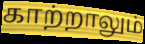
காற்றாலும்